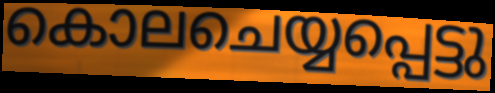
കൊലചെയ്യപ്പെട്ടു